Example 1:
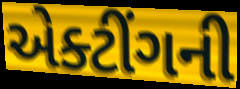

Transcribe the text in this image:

એક્ટીંગની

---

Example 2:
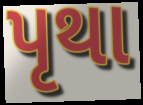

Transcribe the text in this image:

પૃથા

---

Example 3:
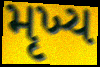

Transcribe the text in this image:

મૃખ્ય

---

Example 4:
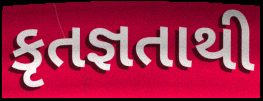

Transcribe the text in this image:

કૃતજ્ઞતાથી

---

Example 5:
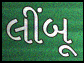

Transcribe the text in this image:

લીંબૂ